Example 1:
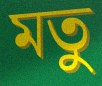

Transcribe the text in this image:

মতু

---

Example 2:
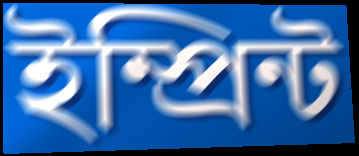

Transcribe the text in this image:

ইম্প্ৰিন্ট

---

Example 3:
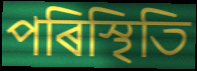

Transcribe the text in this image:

পৰিস্থিতি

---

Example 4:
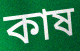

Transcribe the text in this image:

কাষ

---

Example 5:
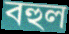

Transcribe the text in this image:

বহুল